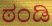
ಠಂಡಿ